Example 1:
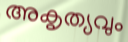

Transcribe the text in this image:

അകൃത്യവും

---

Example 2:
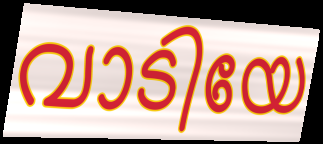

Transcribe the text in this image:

വാടിയേ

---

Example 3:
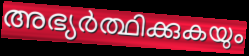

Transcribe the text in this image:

അഭ്യർത്ഥിക്കുകയും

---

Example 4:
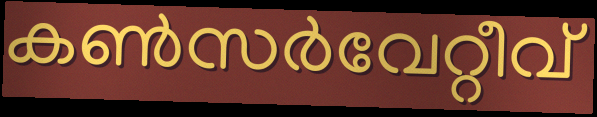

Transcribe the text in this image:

കൺസർവേറ്റീവ്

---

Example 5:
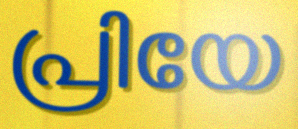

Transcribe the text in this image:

പ്രിയേ